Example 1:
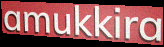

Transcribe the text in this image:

amukkira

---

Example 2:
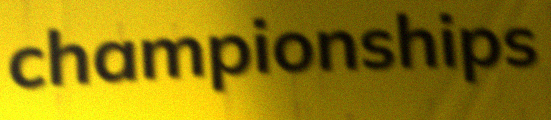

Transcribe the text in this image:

championships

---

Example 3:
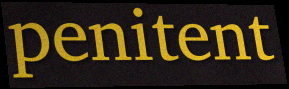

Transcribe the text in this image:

penitent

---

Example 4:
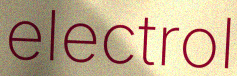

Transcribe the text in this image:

electrol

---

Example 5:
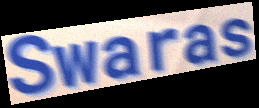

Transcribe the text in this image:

Swaras